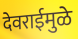
देवराईमुळे